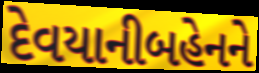
દેવયાનીબહેનને